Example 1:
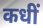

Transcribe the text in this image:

कधीं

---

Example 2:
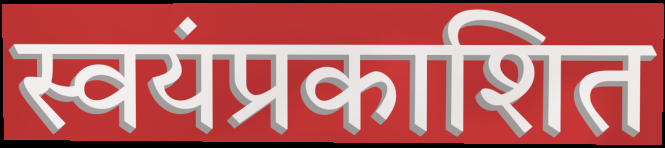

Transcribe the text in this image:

स्वयंप्रकाशित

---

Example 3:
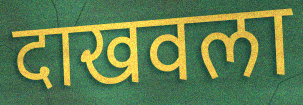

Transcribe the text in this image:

दाखवला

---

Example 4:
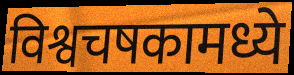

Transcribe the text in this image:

विश्वचषकामध्ये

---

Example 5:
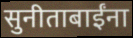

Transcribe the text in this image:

सुनीताबाईंना